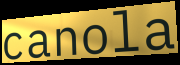
canola